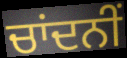
ਚਾਂਦਨੀਂ